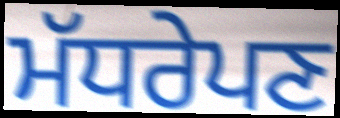
ਮੱਧਰੇਪਣ